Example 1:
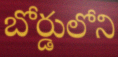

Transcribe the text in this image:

బోర్డులోని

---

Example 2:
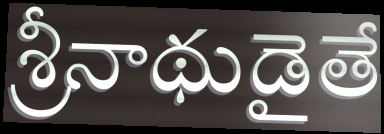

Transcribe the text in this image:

శ్రీనాథుడైతే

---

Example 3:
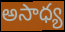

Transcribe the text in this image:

అసాధ్య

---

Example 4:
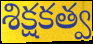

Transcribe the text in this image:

శిక్షకత్వ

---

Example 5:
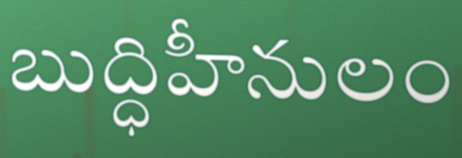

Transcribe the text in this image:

బుద్ధిహీనులం